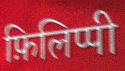
फ़िलिप्पी